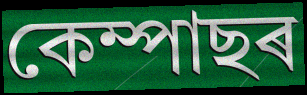
কেম্পাছৰ